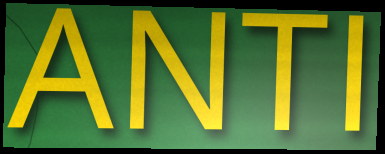
ANTI